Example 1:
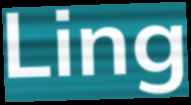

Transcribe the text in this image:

Ling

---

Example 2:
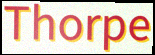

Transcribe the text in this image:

Thorpe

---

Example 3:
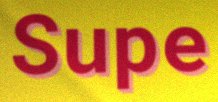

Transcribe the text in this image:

Supe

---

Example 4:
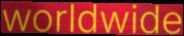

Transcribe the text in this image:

worldwide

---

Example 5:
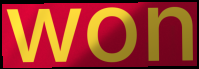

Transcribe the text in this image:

won